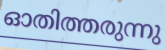
ഓതിത്തരുന്നു